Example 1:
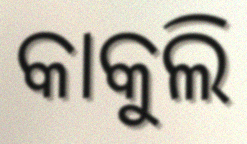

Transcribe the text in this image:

କାକୁଲି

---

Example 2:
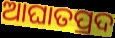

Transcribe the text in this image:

ଆଘାତପ୍ରଦ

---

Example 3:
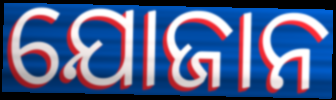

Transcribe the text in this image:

ଯୋଜାନ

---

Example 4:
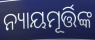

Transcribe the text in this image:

ନ୍ୟାୟମୂର୍ତ୍ତିଙ୍କ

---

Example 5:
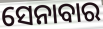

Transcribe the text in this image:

ସେନାବାର